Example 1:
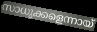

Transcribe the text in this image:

സാധുക്കളെന്നായ്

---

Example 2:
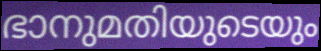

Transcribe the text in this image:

ഭാനുമതിയുടെയും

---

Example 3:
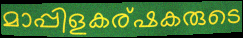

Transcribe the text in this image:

മാപ്പിളകര്ഷകരുടെ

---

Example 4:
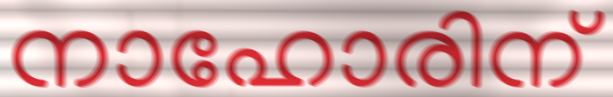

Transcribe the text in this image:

നാഹോരിന്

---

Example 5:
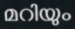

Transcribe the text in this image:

മറിയും